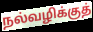
நல்வழிக்குத்